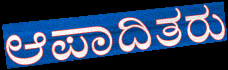
ಆಪಾದಿತರು